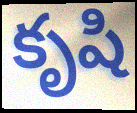
కృషి